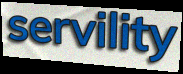
servility